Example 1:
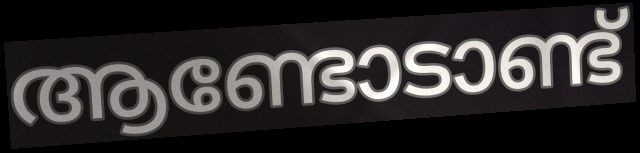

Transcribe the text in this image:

ആണ്ടോടാണ്ട്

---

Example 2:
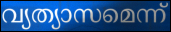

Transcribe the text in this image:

വ്യത്യാസമെന്ന്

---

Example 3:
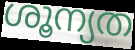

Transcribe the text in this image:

ശൂന്യത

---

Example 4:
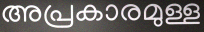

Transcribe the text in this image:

അപ്രകാരമുള്ള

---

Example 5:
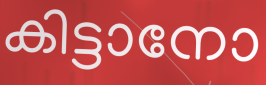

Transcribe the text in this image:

കിട്ടാനോ